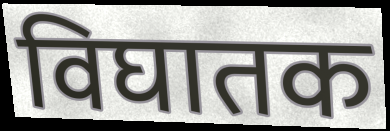
विघातक